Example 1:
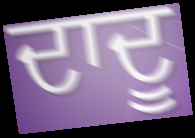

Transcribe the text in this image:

ਦਾਦੂ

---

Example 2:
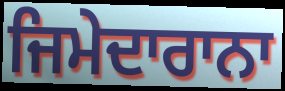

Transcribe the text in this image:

ਜਿਮੇਦਾਰਾਨਾ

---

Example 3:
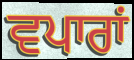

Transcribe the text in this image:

ਵਪਾਰਾਂ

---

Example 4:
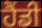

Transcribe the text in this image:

ਹੈਂਡੀ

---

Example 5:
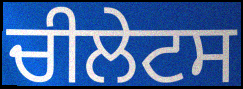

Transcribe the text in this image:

ਚੀਲੇਟਸ